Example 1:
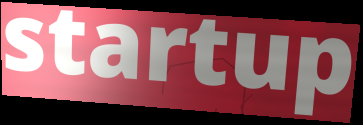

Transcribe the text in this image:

startup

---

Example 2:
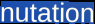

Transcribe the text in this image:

nutation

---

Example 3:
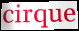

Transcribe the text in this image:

cirque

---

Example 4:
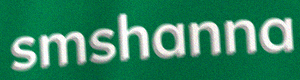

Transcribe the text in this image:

smshanna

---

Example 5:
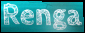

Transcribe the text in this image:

Renga